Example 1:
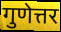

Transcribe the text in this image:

गुणेत्तर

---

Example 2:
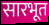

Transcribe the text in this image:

सारभूत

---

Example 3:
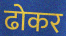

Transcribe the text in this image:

ढोकर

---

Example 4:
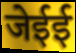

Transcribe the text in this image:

जेईई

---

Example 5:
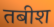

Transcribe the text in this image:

तबीश